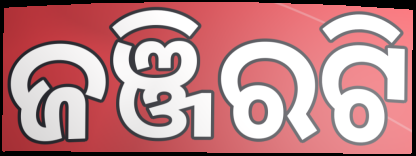
ଜଞ୍ଜିରଟି